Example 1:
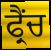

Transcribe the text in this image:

ਫ੍ਰੈਂਚ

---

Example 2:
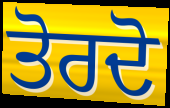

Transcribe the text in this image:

ਤੋਰਦੋ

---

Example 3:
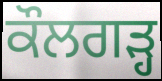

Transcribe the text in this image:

ਕੌਲਗੜ੍ਹ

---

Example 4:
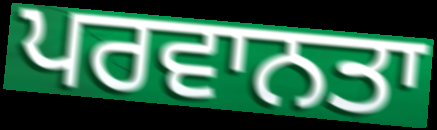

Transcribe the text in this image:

ਪਰਵਾਨਤਾ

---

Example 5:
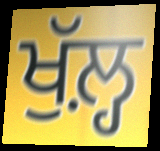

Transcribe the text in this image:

ਖੁੱਲ਼੍ਹ